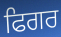
ਫਿਗਰ